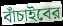
বাঁচাইবের